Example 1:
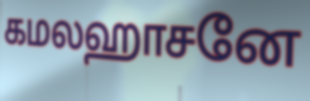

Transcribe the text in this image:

கமலஹாசனே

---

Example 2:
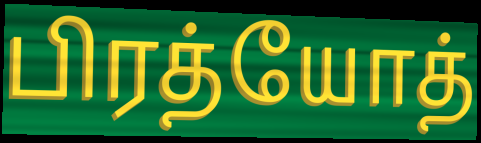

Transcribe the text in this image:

பிரத்யோத்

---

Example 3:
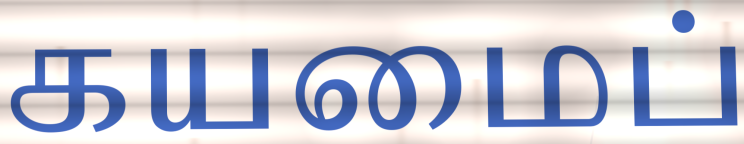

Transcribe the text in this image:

கயமைப்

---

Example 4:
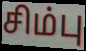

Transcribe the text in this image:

சிம்பு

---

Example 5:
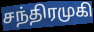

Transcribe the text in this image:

சந்திரமுகி